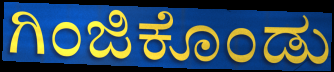
ಗಿಂಜಿಕೊಂಡು